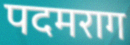
पदमराग